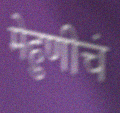
मेहुणीचं